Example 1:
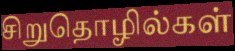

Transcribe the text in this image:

சிறுதொழில்கள்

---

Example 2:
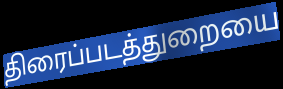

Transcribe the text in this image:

திரைப்படத்துறையை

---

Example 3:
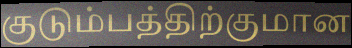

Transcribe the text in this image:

குடும்பத்திற்குமான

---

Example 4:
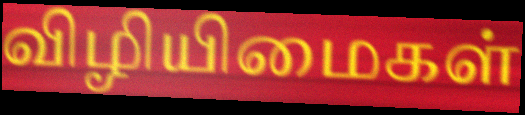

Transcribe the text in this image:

விழியிமைகள்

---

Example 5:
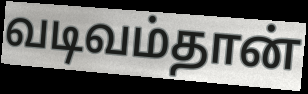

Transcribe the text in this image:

வடிவம்தான்